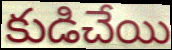
కుడిచేయి